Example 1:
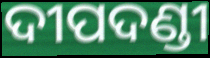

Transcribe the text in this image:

ଦୀପଦଣ୍ଡୀ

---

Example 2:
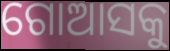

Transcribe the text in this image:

ଗୋଆସକୁ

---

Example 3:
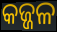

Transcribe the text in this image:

କଜ୍ଜଳ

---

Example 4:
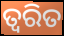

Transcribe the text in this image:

ତ୍ଵରିତ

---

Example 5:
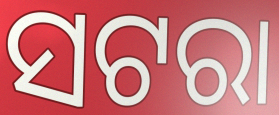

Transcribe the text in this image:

ସଟରା